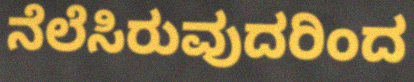
ನೆಲೆಸಿರುವುದರಿಂದ